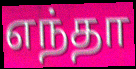
எந்தா